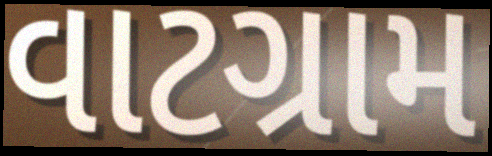
વાટગ્રામ